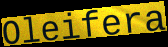
Oleifera